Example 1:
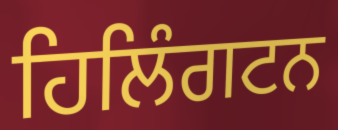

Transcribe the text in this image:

ਹਿਲਿੰਗਟਨ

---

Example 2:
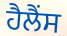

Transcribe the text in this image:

ਹੈਲੈਂਸ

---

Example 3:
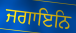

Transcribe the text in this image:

ਜਗਾਇਨਿ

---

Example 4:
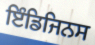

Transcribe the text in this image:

ਇੰਡਿਜਿਨਸ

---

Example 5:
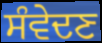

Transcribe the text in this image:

ਸੰਵੇਦਣ